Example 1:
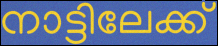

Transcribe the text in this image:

നാട്ടിലേക്ക്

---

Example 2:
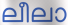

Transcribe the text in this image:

ലീലാ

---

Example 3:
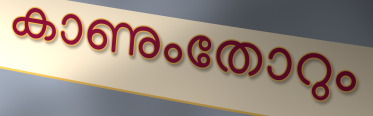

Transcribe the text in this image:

കാണുംതോറും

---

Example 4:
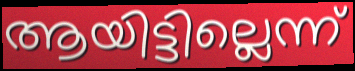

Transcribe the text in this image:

ആയിട്ടില്ലെന്ന്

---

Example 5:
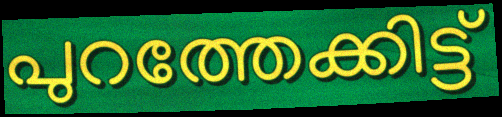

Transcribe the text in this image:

പുറത്തേക്കിട്ട്